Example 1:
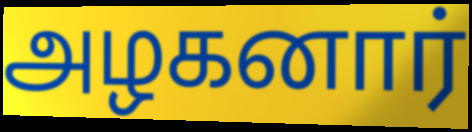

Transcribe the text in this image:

அழகனார்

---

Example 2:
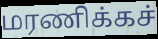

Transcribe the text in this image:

மரணிக்கச்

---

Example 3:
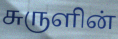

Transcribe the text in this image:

சுருளின்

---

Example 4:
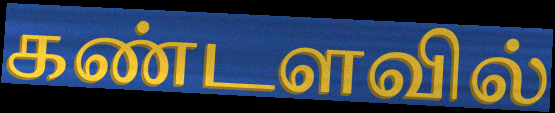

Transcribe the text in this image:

கண்டளவில்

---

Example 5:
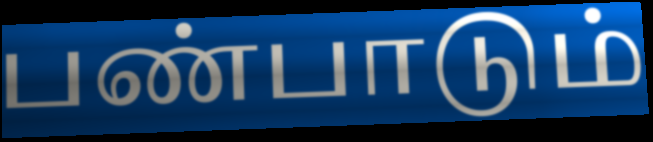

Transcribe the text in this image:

பண்பாடும்